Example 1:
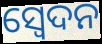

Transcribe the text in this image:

ସ୍ଵେଦନ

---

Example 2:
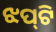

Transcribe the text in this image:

ଝପ୍‌ଟି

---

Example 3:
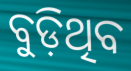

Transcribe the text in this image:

ବୁଡ଼ିଥିବ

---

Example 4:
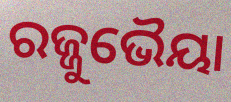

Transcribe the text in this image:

ରଜ୍ଜୁଭୈୟା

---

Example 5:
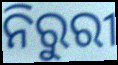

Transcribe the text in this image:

ନିରୁରୀ